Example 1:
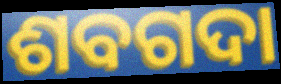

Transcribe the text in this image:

ଶବଗଦା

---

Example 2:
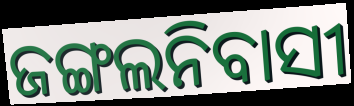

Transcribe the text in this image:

ଜଙ୍ଗଲନିବାସୀ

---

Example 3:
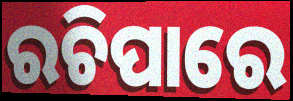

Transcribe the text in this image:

ରଚିପାରେ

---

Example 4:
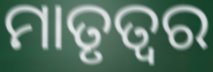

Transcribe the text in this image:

ମାତୃତ୍ୱର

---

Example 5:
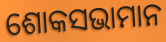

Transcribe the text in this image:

ଶୋକସଭାମାନ